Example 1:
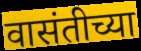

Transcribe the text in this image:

वासंतीच्या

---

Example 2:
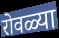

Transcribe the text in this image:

रोवळ्या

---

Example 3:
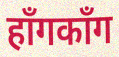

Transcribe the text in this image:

हाँगकाँग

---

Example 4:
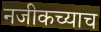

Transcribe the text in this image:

नजीकच्याच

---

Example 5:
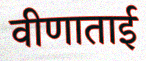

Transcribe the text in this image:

वीणाताई